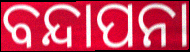
ବନ୍ଦାପନା